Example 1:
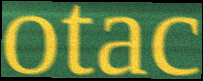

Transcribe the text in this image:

otac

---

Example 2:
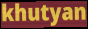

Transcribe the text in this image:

khutyan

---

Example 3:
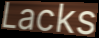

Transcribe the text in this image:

Lacks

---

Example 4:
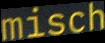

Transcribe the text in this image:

misch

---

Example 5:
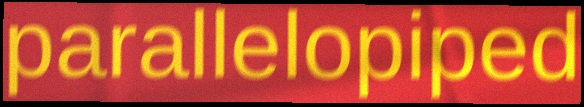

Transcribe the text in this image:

parallelopiped